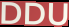
DDU